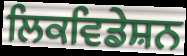
ਲਿਕਵਿਡੇਸ਼ਨ